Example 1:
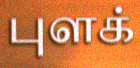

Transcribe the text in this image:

புளக்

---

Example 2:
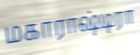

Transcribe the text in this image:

மகாராஷ்டிரா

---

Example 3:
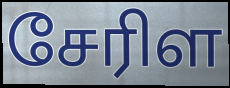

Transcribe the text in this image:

சேரிள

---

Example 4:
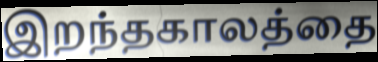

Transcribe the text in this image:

இறந்தகாலத்தை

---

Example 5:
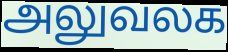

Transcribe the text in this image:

அலுவலக